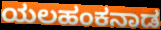
ಯಲಹಂಕನಾಡ